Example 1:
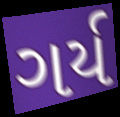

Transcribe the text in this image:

ગર્ય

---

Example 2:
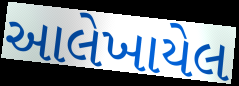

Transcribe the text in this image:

આલેખાયેલ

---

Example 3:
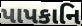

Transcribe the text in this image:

પાપકાનિ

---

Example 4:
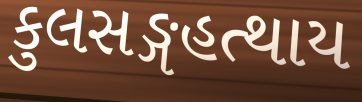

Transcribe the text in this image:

કુલસઙ્ગહત્થાય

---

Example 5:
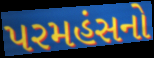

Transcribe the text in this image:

પરમહંસનો